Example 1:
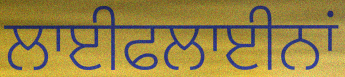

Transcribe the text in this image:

ਲਾਈਫਲਾਈਨਾਂ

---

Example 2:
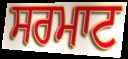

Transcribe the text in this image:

ਸਰਮਾਟ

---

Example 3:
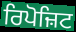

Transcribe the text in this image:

ਰਿਪੋਜ਼ਿਟ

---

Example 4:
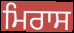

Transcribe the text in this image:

ਮਿਰਾਸ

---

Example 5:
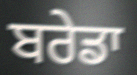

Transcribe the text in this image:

ਬਰੇਡਾ